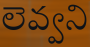
లెవ్వని